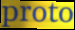
proto